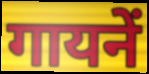
गायनें